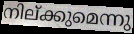
നില്ക്കുമെന്നു